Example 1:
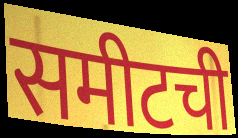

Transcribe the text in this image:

समीटची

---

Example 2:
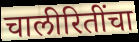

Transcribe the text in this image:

चालीरितींचा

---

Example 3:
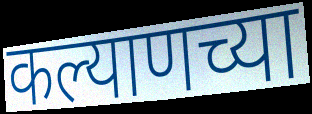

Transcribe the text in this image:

कल्याणच्या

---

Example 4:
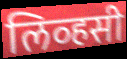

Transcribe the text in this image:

लिव्हसी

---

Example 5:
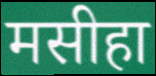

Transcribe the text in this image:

मसीहा